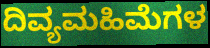
ದಿವ್ಯಮಹಿಮೆಗಳ